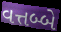
વત્તબ્બે